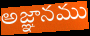
అజ్ఞానము